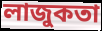
লাজুকতা